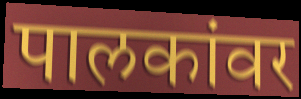
पालकांवर